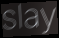
slay